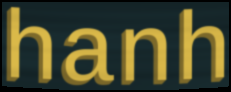
hanh